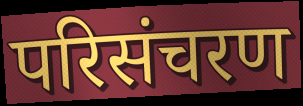
परिसंचरण